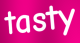
tasty